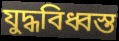
যুদ্ধবিধ্বস্ত